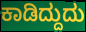
ಕಾಡಿದ್ದುದು